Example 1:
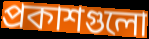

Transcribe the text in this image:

প্রকাশগুলো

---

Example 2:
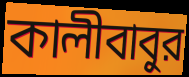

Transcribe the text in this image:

কালীবাবুর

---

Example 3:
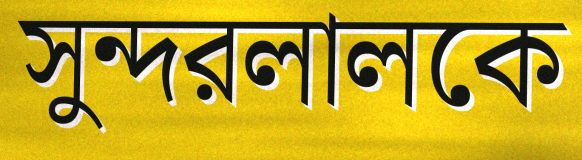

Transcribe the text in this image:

সুন্দরলালকে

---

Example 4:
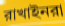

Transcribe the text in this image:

রাখাইনরা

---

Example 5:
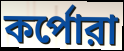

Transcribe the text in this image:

কর্পোরা